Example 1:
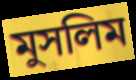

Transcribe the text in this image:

মুসলিম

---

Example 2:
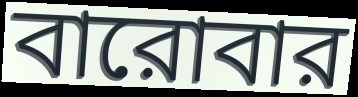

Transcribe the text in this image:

বারোবার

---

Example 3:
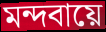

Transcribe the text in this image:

মন্দবায়ে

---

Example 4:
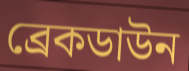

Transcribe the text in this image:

ব্রেকডাউন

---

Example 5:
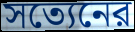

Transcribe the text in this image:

সত্যেনের